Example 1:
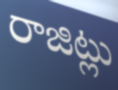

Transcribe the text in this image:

రాజిట్లు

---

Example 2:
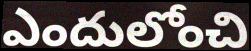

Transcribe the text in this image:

ఎందులోంచి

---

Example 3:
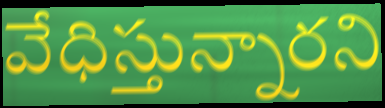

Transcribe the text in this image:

వేధిస్తున్నారని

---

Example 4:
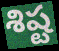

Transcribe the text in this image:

శిష్ట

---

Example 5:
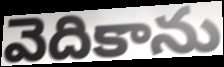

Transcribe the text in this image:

వెదికాను